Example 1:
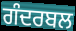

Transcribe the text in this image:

ਗੰਦਰਬਲ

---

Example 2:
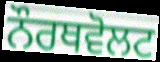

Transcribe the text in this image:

ਨੌਰਥਵੋਲਟ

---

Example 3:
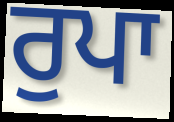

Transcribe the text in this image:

ਰੁਪਾ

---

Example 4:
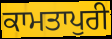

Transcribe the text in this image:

ਕਾਮਤਾਪੁਰੀ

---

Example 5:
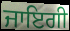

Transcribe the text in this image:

ਜਾਇਗੀ